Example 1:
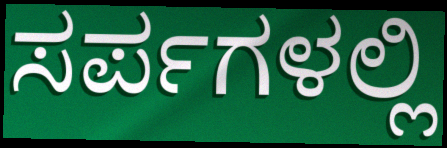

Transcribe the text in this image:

ಸರ್ಪಗಳಲ್ಲಿ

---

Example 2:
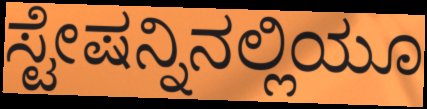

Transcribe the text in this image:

ಸ್ಟೇಷನ್ನಿನಲ್ಲಿಯೂ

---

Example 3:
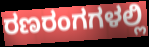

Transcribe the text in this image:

ರಣರಂಗಗಳಲ್ಲಿ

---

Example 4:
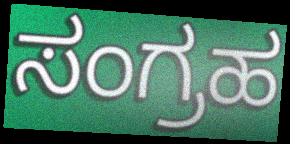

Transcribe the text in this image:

ಸಂಗ್ರಹ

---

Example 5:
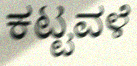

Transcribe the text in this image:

ಕಟ್ಟವಳೆ